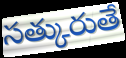
సత్కురుతే